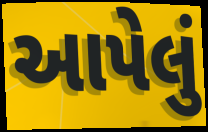
આપેલું